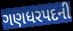
ગણધરપદની